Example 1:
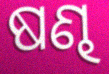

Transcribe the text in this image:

ଷଣ୍ଢ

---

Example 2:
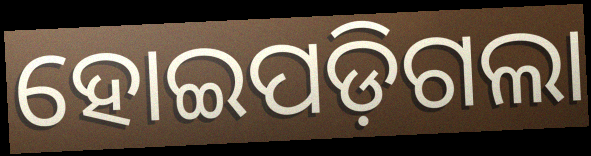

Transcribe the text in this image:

ହୋଇପଡ଼ିଗଲା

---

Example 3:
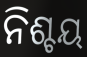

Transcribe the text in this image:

ନିଶ୍ଚୟ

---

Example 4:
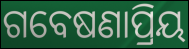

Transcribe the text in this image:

ଗବେଷଣାପ୍ରିୟ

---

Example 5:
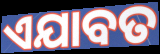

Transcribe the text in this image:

ଏଯାବତ